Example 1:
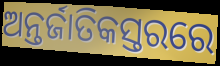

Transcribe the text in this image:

ଅନ୍ତର୍ଜାତିକସ୍ତରରେ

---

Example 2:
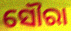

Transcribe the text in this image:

ସୌରା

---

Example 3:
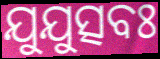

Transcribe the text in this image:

ଯୁଯୁତ୍ସବଃ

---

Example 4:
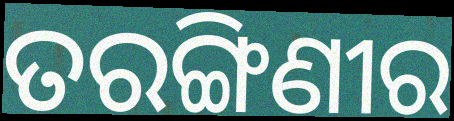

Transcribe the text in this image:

ତରଙ୍ଗିଣୀର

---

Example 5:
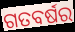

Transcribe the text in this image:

ଗତବର୍ଷର